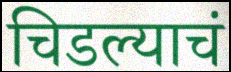
चिडल्याचं